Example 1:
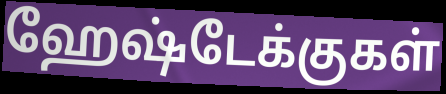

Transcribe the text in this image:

ஹேஷ்டேக்குகள்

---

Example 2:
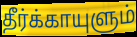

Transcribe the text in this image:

தீர்க்காயுளும்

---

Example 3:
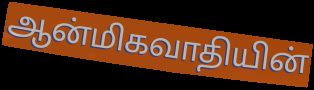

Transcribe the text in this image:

ஆன்மிகவாதியின்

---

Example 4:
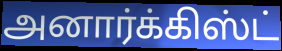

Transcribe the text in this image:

அனார்க்கிஸ்ட்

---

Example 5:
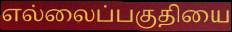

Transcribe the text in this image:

எல்லைப்பகுதியை